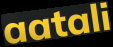
aatali